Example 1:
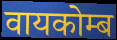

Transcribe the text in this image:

वायकोम्ब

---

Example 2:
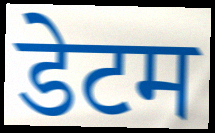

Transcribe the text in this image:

डेटम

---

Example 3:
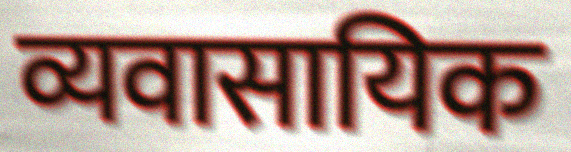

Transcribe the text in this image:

व्यवासायिक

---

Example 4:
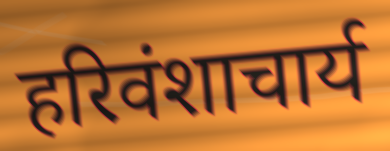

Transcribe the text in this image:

हरिवंशाचार्य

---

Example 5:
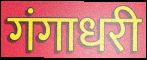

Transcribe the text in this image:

गंगाधरी